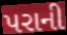
પરાની